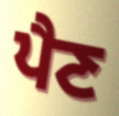
ਪੈਣ